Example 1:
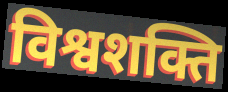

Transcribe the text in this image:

विश्वशक्ति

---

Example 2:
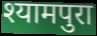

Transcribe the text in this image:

श्यामपुरा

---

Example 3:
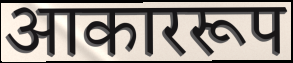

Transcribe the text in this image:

आकाररूप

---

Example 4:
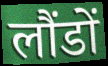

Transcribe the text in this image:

लौंडों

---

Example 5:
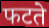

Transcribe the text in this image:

फटते